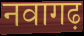
नवागढ़